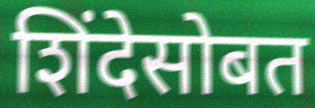
शिंदेसोबत